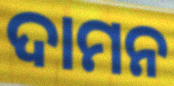
ଦାମନ